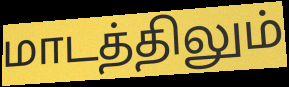
மாடத்திலும்